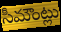
సీమౌంట్లు